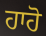
ਹਾਹੋ